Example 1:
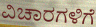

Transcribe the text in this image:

ವಿಚಾರಗಳಿಗೆ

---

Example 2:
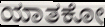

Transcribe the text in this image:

ಯಾತಕೋ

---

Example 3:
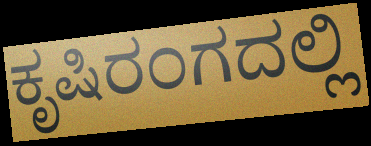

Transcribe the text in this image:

ಕೃಷಿರಂಗದಲ್ಲಿ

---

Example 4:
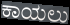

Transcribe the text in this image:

ಕಾಯಲು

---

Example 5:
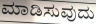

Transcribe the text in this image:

ಮಾಡಿಸುವುದು